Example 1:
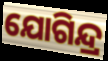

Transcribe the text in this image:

ଯୋଗିନ୍ଦ୍ର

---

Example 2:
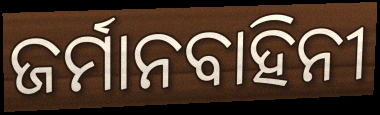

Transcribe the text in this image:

ଜର୍ମାନବାହିନୀ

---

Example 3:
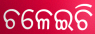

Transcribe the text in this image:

ଚଳେଇଚି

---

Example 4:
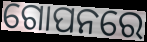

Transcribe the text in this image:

ଗୋପନରେ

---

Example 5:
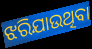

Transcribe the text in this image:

ଝରିଯାଉଥିବା